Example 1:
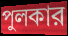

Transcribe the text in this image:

পুলকার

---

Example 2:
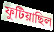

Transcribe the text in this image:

ফুটিয়াছিল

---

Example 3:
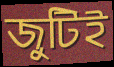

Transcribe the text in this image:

জুটিই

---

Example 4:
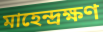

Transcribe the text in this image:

মাহেন্দ্রক্ষণ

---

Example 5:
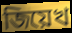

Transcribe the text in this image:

জিয়েখ